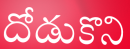
దోడుకొని